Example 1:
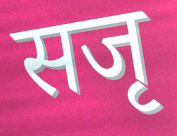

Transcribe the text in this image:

सजृ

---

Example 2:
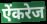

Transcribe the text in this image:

ऐंकरेज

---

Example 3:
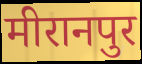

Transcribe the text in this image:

मीरानपुर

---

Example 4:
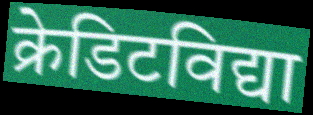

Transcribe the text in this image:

क्रेडिटविद्या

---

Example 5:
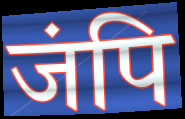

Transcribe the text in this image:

जंपि